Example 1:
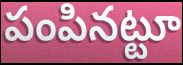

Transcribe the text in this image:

పంపినట్టూ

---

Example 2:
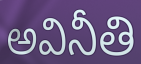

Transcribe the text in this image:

అవినీతి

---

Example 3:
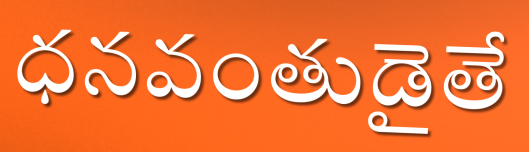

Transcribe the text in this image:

ధనవంతుడైతే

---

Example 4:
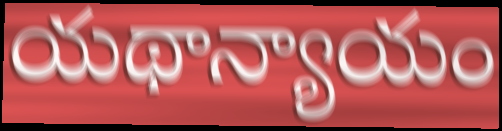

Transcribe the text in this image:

యథాన్యాయం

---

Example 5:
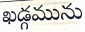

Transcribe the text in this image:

ఖడ్గమును